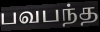
பவபந்த